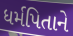
ધર્મપિતાને